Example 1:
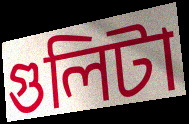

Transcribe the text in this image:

গুলিটা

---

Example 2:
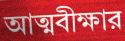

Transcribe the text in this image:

আত্মবীক্ষার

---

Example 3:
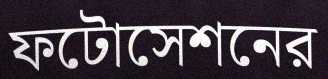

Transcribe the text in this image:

ফটোসেশনের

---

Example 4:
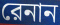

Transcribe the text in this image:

রেনান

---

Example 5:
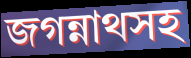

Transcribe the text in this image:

জগন্নাথসহ